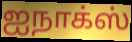
ஐநாக்ஸ்